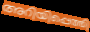
അറിയിപ്പെത്തി